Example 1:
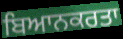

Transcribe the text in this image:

ਬਿਆਨਕਰਤਾ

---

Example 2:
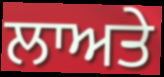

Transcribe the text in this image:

ਲਾਅਤੇ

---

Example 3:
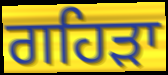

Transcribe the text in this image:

ਗਹਿੜਾ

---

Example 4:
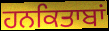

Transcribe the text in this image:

ਹਨਕਿਤਾਬਾਂ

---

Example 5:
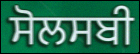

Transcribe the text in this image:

ਸੋਲਸਬੀ